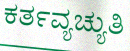
ಕರ್ತವ್ಯಚ್ಯುತಿ